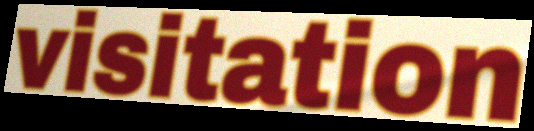
visitation